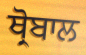
ਥ੍ਰੋਬਾਲ